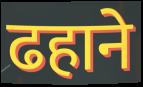
ढहाने